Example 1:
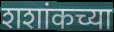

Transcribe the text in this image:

शशांकच्या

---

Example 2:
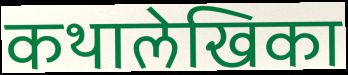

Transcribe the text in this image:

कथालेखिका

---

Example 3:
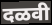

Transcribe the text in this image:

दळवी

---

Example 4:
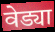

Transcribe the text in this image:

वेड्या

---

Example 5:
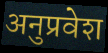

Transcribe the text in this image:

अनुप्रवेश